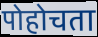
पोहोचता